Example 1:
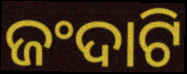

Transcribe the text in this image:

ଜଂଦାଟି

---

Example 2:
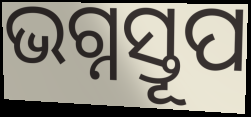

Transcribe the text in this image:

ଭଗ୍ନସ୍ତୂପ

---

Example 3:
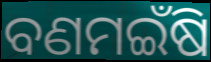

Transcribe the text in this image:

ବଣମଇଁଷି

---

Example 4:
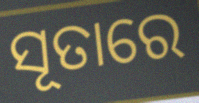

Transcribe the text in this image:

ସୂତାରେ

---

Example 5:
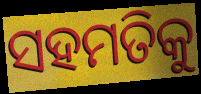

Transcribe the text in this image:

ସହମତିକୁ